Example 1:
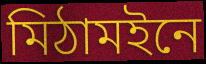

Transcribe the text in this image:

মিঠামইনে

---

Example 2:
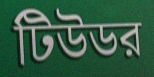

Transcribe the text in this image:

টিউডর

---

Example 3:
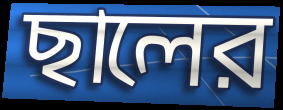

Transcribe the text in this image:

ছালের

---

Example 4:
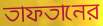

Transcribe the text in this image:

তাফতানের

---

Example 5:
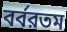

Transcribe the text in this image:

বর্বরতম